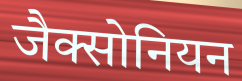
जैक्सोनियन